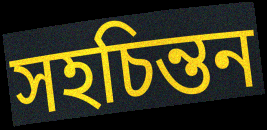
সহচিন্তন